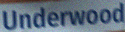
Underwood